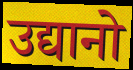
उद्यानो